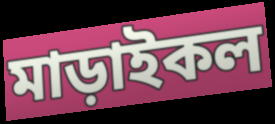
মাড়াইকল